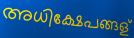
അധിക്ഷേപങ്ങള്